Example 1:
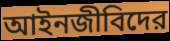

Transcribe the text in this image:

আইনজীবিদের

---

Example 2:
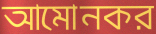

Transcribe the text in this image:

আমোনকর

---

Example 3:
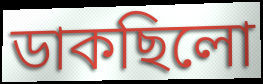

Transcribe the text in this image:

ডাকছিলো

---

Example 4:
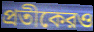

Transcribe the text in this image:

প্রতীকেরও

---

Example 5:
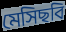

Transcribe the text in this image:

মেসিছবি